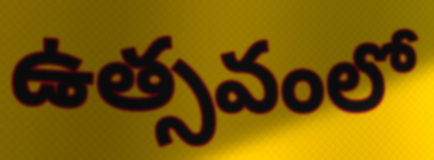
ఉత్సవంలో